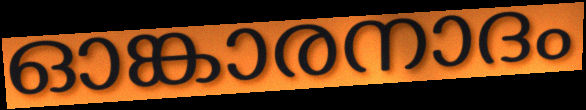
ഓങ്കാരനാദം